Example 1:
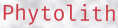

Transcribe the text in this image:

Phytolith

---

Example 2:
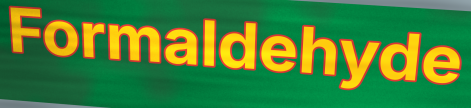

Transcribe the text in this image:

Formaldehyde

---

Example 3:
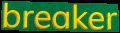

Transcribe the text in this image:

breaker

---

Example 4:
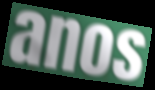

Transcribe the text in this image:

anos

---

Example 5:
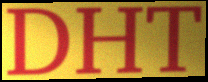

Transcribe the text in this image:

DHT